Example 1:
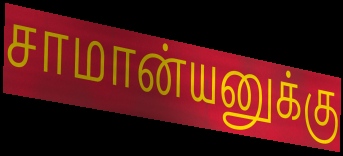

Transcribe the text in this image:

சாமான்யனுக்கு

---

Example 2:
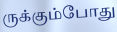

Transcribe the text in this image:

ருக்கும்போது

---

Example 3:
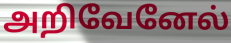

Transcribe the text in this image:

அறிவேனேல்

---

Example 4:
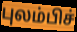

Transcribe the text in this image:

புலம்பிச்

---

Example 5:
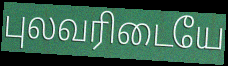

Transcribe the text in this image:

புலவரிடையே